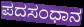
ಪದಸಂಧಾನ